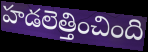
హడలెత్తించింది